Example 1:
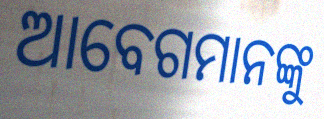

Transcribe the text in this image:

ଆବେଗମାନଙ୍କୁ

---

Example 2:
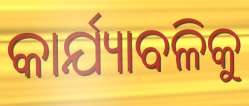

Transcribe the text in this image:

କାର୍ଯ୍ୟାବଳିକୁ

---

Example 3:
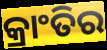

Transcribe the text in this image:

କ୍ରାଂତିର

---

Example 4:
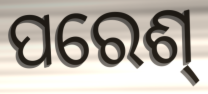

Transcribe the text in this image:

ପରେଶ୍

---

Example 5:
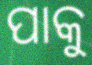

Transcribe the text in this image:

ପାକୁ